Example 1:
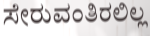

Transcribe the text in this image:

ಸೇರುವಂತಿರಲಿಲ್ಲ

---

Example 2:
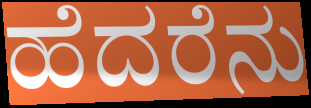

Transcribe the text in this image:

ಹೆದರೆನು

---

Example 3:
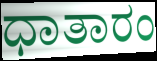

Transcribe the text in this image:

ಧಾತಾರಂ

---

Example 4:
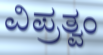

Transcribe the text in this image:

ವಿಪ್ರತ್ವಂ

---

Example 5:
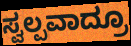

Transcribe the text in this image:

ಸ್ವಲ್ಪವಾದ್ರೂ